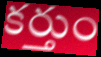
కర్తుం